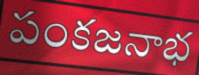
పంకజనాభ